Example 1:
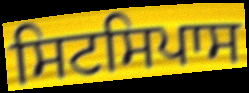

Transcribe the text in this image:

ਸਿਟਸਿਪਾਸ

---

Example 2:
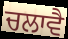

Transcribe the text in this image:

ਚਲਾਵੈ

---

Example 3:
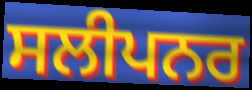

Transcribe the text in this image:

ਸਲੀਪਨਰ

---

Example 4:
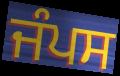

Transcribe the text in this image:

ਜੰਪਸ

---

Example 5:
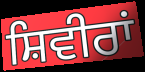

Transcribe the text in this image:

ਸ਼ਿਵੀਰਾਂ